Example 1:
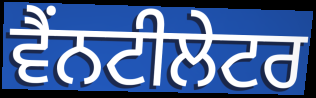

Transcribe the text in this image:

ਵੈਂਨਟੀਲੇਟਰ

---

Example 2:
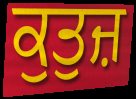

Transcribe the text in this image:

ਕੁਤੁਜ਼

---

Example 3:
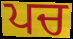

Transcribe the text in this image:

ਪਚ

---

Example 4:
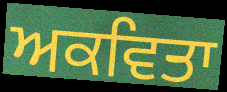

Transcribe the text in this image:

ਅਕਵਿਤਾ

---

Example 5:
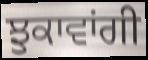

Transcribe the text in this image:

ਝੁਕਾਵਾਂਗੀ